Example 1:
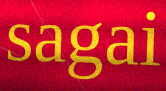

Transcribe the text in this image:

sagai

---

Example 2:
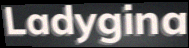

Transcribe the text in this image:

Ladygina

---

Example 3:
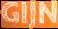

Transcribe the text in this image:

GIJN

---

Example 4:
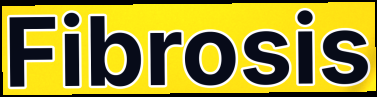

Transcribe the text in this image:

Fibrosis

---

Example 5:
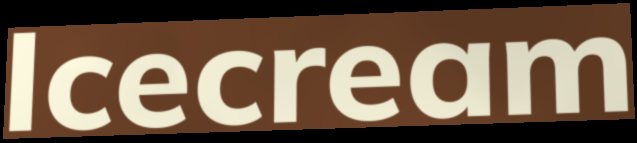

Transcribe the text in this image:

Icecream